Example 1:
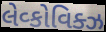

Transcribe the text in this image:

લેવ્કોવિક્ઝ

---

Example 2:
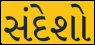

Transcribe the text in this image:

સંદેશો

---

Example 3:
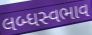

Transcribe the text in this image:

લબ્ધસ્વભાવ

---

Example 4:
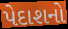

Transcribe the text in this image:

પેદાશનો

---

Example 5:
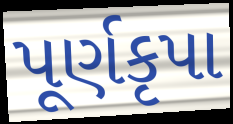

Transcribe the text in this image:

પૂર્ણકૃપા